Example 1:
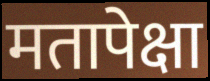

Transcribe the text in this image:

मतापेक्षा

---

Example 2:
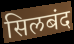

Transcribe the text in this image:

सिलबंद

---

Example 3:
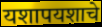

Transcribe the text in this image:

यशापयशाचे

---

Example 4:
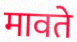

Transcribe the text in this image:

मावते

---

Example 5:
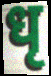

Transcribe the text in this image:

धृ